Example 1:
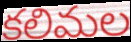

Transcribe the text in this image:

కలిమల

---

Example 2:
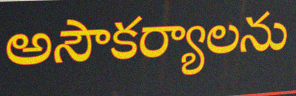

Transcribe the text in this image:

అసౌకర్యాలను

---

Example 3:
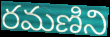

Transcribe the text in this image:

రమణిని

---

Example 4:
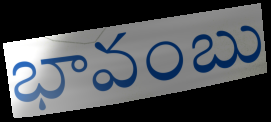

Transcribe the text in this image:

భావంబు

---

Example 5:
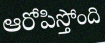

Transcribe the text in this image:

ఆరోపిస్తోంది